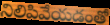
నిలిపివేయడంతో